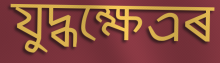
যুদ্ধক্ষেত্ৰৰ